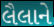
લૈલાને